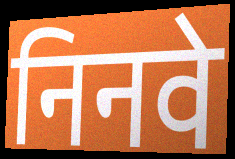
निनवे